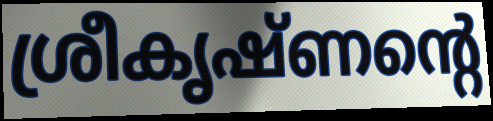
ശ്രീകൃഷ്ണന്റെ